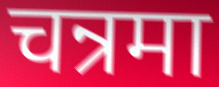
चन्रमा